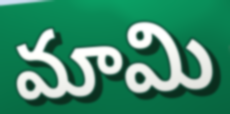
మామి